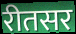
रीतसर